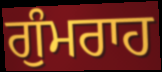
ਗੁੰਮਰਾਹ